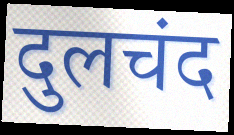
दुलचंद